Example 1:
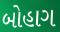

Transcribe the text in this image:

બોહાગ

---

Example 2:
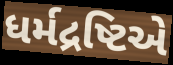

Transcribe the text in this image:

ધર્મદ્રષ્ટિએ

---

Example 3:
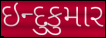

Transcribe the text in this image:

ઇન્દુકુમાર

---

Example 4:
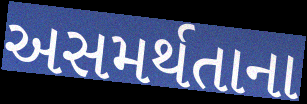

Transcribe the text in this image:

અસમર્થતાના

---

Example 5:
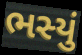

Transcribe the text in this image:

ભસ્યું